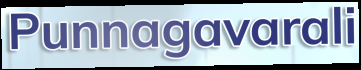
Punnagavarali